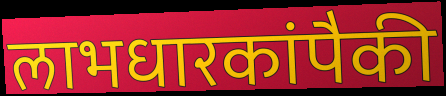
लाभधारकांपैकी